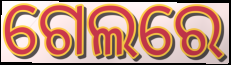
ଗେଲରେ